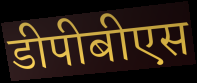
डीपीबीएस